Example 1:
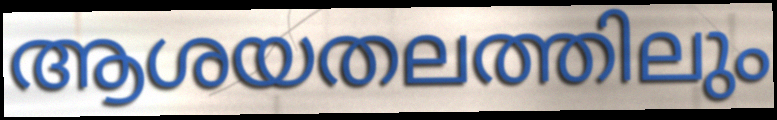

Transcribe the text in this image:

ആശയതലത്തിലും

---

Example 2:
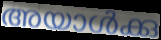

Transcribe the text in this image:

അയാൾക്കു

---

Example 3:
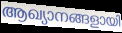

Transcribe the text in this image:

ആഖ്യാനങ്ങളായി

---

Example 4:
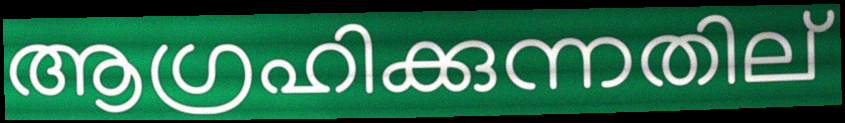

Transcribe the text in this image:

ആഗ്രഹിക്കുന്നതില്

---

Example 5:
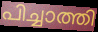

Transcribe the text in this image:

പിച്ചാത്തി